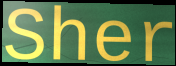
Sher